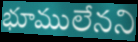
భూములేనని